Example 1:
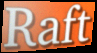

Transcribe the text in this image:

Raft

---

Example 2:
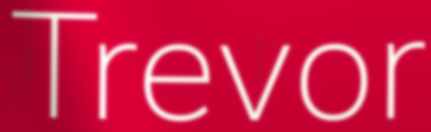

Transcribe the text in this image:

Trevor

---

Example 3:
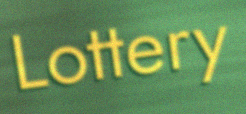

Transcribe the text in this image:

Lottery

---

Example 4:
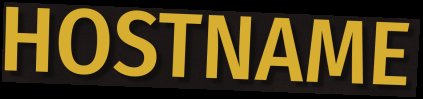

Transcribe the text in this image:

HOSTNAME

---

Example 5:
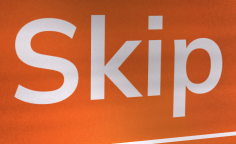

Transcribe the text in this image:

Skip